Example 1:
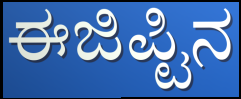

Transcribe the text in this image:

ಈಜಿಪ್ಟಿನ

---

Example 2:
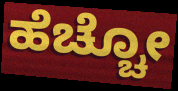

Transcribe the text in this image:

ಹೆಚ್ಚೋ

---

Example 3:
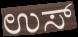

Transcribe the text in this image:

ಉಸ್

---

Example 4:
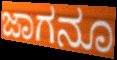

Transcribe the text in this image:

ಜಾಗನೂ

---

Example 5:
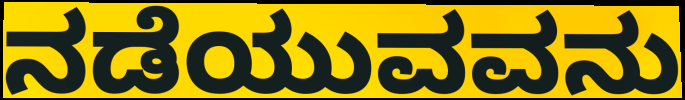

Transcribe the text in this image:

ನಡೆಯುವವನು